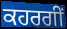
ਕਹਰਗੀਂ